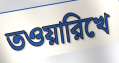
তওয়ারিখে